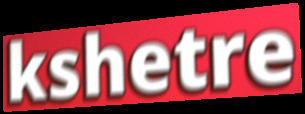
kshetre